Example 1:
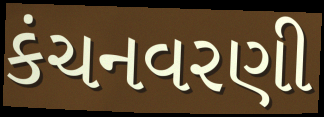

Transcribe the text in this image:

કંચનવરણી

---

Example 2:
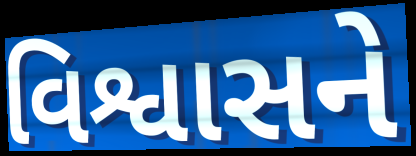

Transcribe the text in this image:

વિશ્વાસને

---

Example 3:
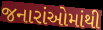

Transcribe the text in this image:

જનારાંઓમાંથી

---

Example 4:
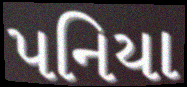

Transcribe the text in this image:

પનિયા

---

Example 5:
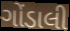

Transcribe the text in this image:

ગોંડાલી